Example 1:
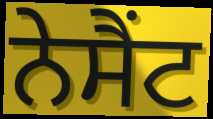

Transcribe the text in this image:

ਨੇਸੈਂਟ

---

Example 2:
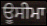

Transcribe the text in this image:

ਊਸੀਮਾ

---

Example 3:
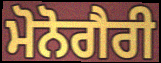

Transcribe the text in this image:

ਮੋਨੋਗੈਰੀ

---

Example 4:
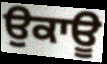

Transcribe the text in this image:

ਉਕਾਊ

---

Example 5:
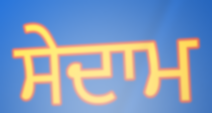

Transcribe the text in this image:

ਸੇਦਾਮ